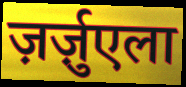
ज़र्ज़ुएला